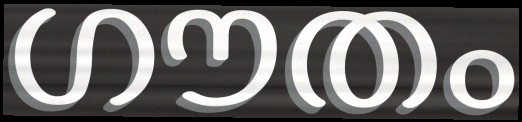
ഗൗതം